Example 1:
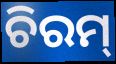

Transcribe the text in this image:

ଚିରମ୍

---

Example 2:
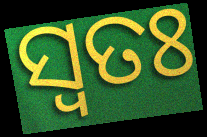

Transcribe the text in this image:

ସ୍ଵତଃ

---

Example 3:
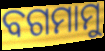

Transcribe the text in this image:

ବଗମାମୁ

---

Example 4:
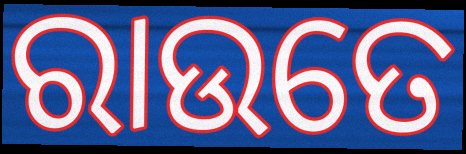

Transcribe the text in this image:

ରାଉତେ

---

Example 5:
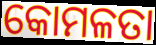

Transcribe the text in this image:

କୋମଳତା